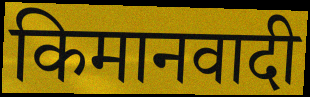
किमानवादी